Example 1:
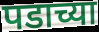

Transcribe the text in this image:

पडाच्या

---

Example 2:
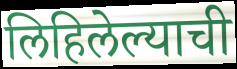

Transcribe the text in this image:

लिहिलेल्याची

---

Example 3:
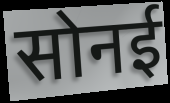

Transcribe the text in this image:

सोनई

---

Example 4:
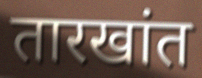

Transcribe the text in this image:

तारखांत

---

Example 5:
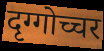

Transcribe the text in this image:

दृग्गोच्चर